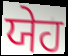
ਯੇਹ